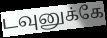
டவுனுக்கே